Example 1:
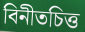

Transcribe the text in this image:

বিনীতচিত্ত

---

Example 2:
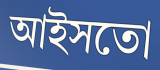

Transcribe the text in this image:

আইসতো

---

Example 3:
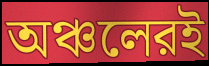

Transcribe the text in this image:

অঞ্চলেরই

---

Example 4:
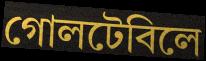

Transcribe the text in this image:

গোলটেবিলে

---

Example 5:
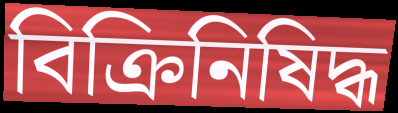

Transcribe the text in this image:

বিক্রিনিষিদ্ধ